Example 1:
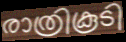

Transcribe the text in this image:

രാത്രികൂടി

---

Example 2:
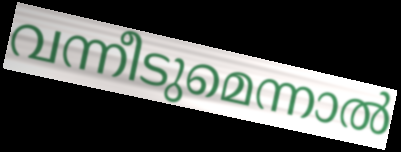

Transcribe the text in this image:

വന്നീടുമെന്നാൽ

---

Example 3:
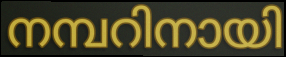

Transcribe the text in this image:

നമ്പറിനായി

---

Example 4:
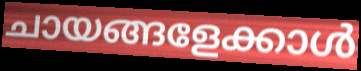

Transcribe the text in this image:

ചായങ്ങളേക്കാൾ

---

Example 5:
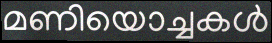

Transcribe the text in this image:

മണിയൊച്ചകൾ